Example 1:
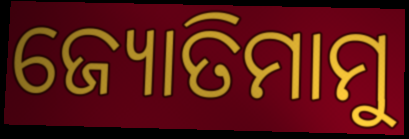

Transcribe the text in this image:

ଜ୍ୟୋତିମାମୁ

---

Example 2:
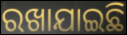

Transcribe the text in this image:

ରଖାଯାଇଛି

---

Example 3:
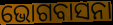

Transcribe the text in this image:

ଭୋଗବାସନା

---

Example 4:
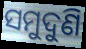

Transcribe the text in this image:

ସମୁଦୁଣି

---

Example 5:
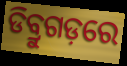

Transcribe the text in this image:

ଡିବ୍ରୁଗଡ଼ରେ